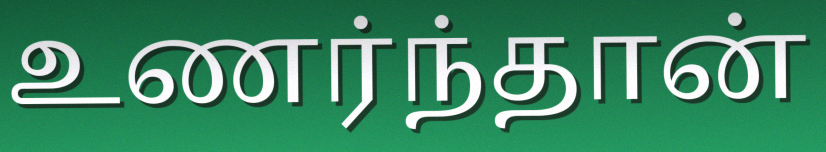
உணர்ந்தான்